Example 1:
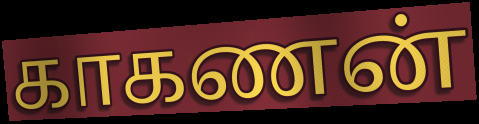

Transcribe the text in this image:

காகணன்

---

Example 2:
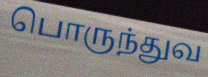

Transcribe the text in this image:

பொருந்துவ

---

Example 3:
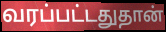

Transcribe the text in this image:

வரப்பட்டதுதான்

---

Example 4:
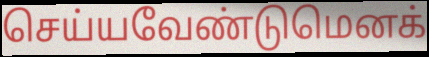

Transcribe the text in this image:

செய்யவேண்டுமெனக்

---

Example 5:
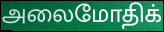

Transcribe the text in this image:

அலைமோதிக்